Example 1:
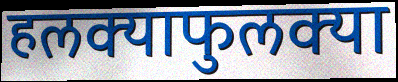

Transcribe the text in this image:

हलक्याफुलक्या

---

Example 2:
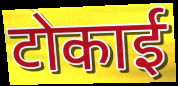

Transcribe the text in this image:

टोकाई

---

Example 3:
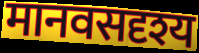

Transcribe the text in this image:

मानवसदृश्य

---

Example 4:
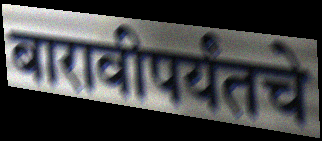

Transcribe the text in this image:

बारावीपर्यंतचे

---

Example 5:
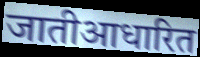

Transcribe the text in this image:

जातीआधारित